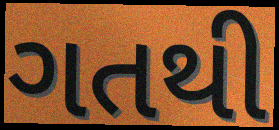
ગતથી